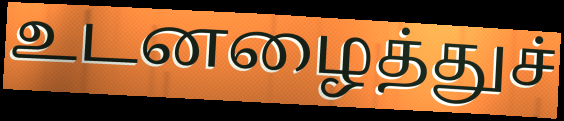
உடனழைத்துச்